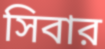
সিবার